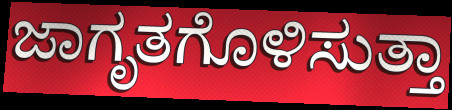
ಜಾಗೃತಗೊಳಿಸುತ್ತಾ